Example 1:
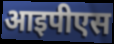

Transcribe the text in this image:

आइपीएस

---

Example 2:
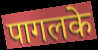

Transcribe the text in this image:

पागलके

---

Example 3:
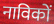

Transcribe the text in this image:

नाविकों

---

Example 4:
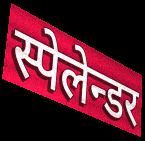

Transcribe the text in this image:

स्पेलेन्डर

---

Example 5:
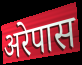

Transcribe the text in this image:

अरेपास